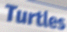
Turtles